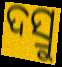
ଦସ୍ରୁ